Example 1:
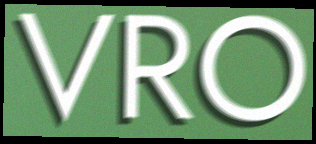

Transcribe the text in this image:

VRO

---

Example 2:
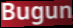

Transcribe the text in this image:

Bugun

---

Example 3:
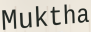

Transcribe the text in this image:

Muktha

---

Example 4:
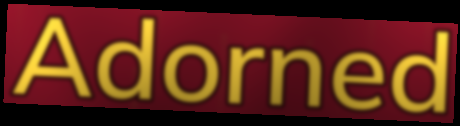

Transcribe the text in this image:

Adorned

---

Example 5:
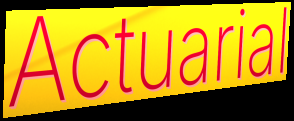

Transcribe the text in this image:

Actuarial